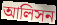
আলিসন